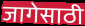
जागेसाठी